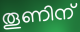
തൂണിന്